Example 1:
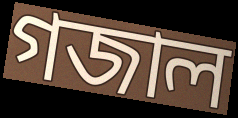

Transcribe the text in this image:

গজাল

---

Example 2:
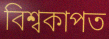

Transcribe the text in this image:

বিশ্বকাপত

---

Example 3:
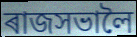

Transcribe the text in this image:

ৰাজসভালৈ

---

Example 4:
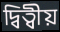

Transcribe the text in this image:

দ্বিত্বীয়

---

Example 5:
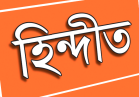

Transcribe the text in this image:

হিন্দীত